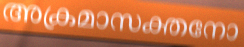
അക്രമാസക്തനോ